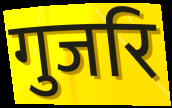
गुजरि